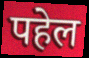
पहेल